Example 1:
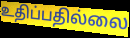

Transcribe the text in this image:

உதிப்பதில்லை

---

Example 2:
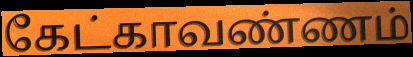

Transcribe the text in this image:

கேட்காவண்ணம்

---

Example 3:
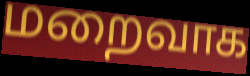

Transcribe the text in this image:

மறைவாக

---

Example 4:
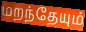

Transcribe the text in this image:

மறந்தேயும்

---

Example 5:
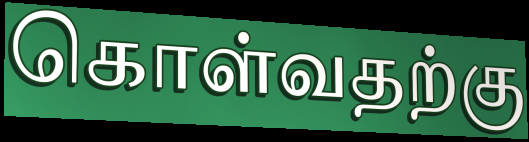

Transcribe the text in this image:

கொள்வதற்கு